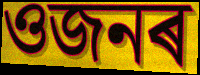
ওজনৰ